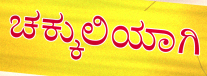
ಚಕ್ಕುಲಿಯಾಗಿ